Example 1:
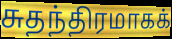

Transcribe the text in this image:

சுதந்திரமாகக்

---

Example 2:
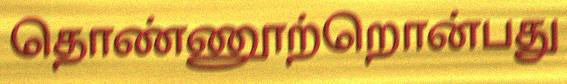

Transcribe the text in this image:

தொண்ணூற்றொன்பது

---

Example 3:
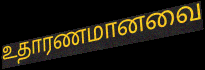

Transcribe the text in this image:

உதாரணமானவை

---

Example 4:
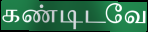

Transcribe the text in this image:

கண்டிடவே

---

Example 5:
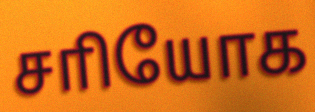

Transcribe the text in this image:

சரியோக